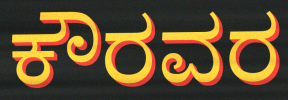
ಕೌರವರ